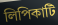
লিপিকাটি